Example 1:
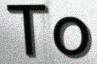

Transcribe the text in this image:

To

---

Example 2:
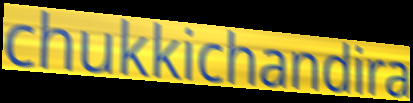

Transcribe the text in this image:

chukkichandira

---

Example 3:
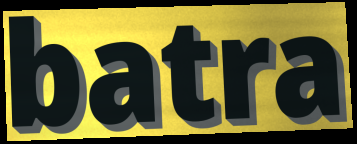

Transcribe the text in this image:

batra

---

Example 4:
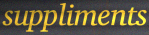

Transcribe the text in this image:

suppliments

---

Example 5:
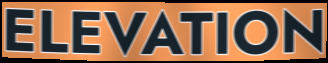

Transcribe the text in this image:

ELEVATION